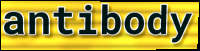
antibody